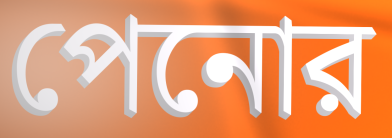
পেনোর